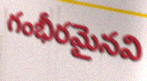
గంభీరమైనవి